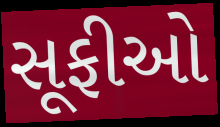
સૂફીઓ